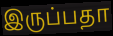
இருப்பதா